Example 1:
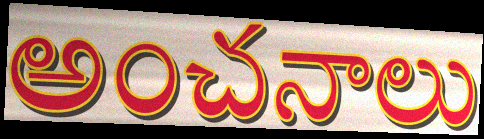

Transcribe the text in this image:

అంచనాలు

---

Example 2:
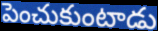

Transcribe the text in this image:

పెంచుకుంటాడు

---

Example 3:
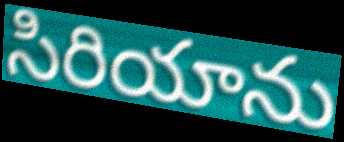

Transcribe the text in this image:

సిరియాను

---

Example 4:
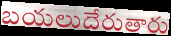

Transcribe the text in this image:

బయలుదేరుతారు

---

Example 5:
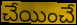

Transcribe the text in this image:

చేయించే